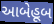
આબેહૂબ